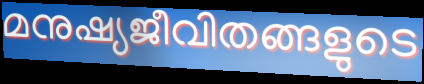
മനുഷ്യജീവിതങ്ങളുടെ